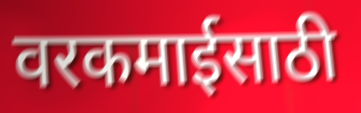
वरकमाईसाठी